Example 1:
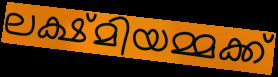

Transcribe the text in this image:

ലക്ഷ്മിയമ്മക്ക്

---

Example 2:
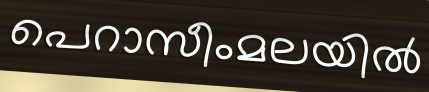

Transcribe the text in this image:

പെറാസീംമലയിൽ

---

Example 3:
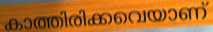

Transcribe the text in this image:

കാത്തിരിക്കവെയാണ്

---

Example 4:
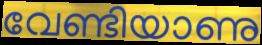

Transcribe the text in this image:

വേണ്ടിയാണു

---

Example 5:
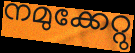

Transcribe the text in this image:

നമുക്കേറ്റു